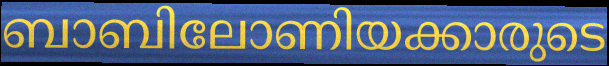
ബാബിലോണിയക്കാരുടെ